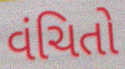
વંચિતો